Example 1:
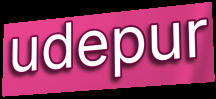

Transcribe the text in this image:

udepur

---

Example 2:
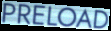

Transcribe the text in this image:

PRELOAD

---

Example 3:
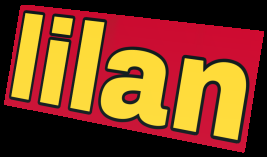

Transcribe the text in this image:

lilan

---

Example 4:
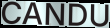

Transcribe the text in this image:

CANDU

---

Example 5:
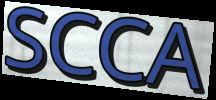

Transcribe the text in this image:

SCCA